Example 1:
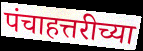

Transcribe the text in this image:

पंचाहत्तरीच्या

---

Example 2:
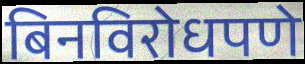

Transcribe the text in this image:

बिनविरोधपणे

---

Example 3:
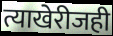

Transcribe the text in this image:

त्याखेरीजही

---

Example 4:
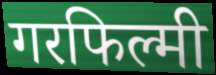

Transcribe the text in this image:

गरफिल्मी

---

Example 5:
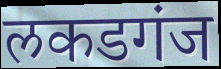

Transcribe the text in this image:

लकडगंज